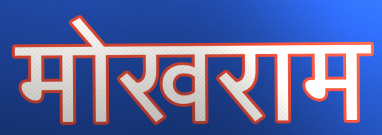
मोखराम